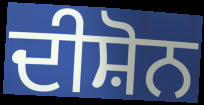
ਦੀਸ਼ੋਨ